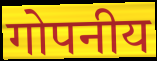
गोपनीय